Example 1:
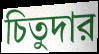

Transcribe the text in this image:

চিতুদার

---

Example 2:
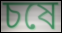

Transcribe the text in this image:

চষে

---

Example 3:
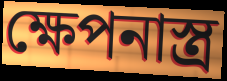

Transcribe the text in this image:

ক্ষেপনাস্ত্র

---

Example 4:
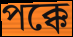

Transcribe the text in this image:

পক্কে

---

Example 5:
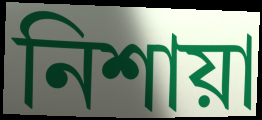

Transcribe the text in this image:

নিশায়া